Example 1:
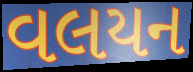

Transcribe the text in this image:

વલયન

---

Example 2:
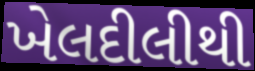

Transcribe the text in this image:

ખેલદીલીથી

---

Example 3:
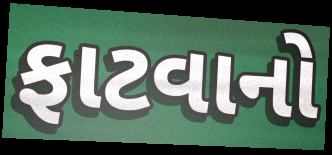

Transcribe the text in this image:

ફાટવાનો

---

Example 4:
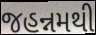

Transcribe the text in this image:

જહન્નમથી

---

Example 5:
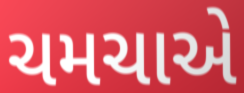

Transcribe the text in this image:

ચમચાએ